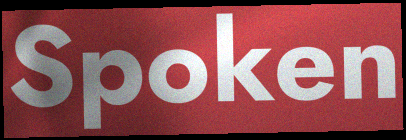
Spoken